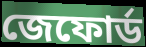
জেফোর্ড